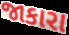
જાકારા